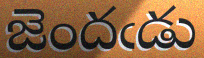
జెందఁడు